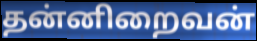
தன்னிறைவன்